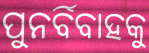
ପୁନର୍ବିବାହକୁ